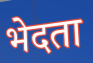
भेदता